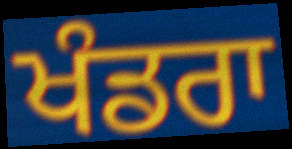
ਖੰਡਰਾ